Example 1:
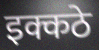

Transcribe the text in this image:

इक्कठे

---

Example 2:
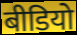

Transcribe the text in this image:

बीडियो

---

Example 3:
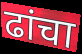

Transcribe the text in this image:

ढांचा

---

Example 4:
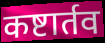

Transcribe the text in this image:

कष्टार्तव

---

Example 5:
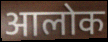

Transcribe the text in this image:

आलोक